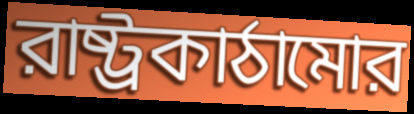
রাষ্ট্রকাঠামোর